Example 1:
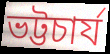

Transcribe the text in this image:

ভট্টচাৰ্য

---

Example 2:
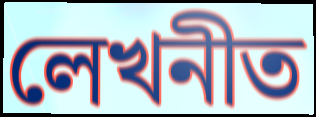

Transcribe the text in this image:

লেখনীত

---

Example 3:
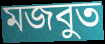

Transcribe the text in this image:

মজবুত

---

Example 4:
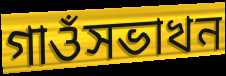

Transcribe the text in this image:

গাওঁসভাখন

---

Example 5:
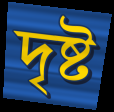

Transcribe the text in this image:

দৃষ্ট